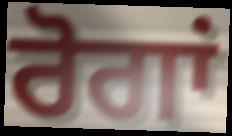
ਰੋਗਾਂ